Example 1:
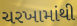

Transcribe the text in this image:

ચરખામાંથી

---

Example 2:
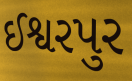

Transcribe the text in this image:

ઈશ્વરપુર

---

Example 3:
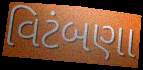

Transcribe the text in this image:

વિટંબણા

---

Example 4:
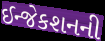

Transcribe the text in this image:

ઈન્જેકશનની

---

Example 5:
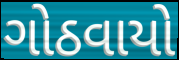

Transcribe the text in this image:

ગોઠવાયો